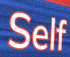
Self